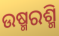
ଉଷ୍ମରଶ୍ମି